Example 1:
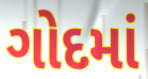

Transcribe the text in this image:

ગોદમાં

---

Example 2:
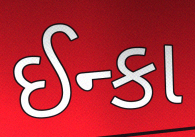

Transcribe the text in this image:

ઈન્કા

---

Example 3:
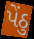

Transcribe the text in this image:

પેંઠુ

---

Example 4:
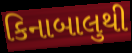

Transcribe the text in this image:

કિનાબાલુથી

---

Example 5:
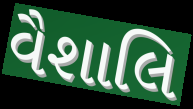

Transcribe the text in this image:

વૈશાલિ